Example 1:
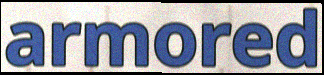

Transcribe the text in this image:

armored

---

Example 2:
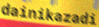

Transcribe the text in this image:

dainikazadi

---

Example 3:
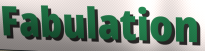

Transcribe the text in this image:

Fabulation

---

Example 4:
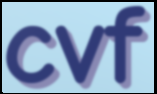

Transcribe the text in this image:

cvf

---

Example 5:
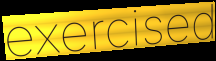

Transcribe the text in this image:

exercised